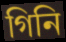
গিনি